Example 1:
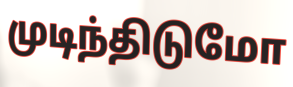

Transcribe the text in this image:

முடிந்திடுமோ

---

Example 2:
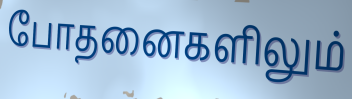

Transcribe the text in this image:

போதனைகளிலும்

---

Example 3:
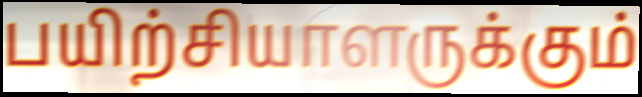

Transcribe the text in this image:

பயிற்சியாளருக்கும்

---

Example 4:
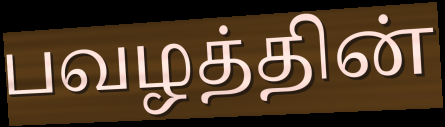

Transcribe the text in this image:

பவழத்தின்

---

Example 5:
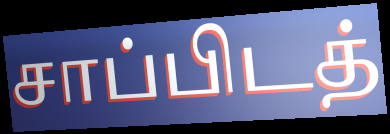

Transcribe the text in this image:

சாப்பிடத்